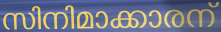
സിനിമാക്കാരന്